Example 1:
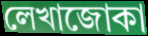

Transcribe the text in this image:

লেখাজোকা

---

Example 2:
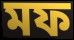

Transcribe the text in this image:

মফ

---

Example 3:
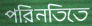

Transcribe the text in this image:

পরিনতিতে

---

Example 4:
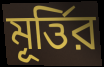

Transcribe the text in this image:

মূর্ত্তির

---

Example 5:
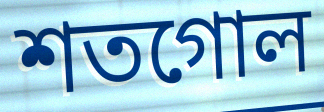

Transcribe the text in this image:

শতগোল